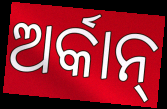
ଅର୍କାନ୍